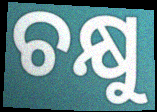
ଚକ୍ଷୁ